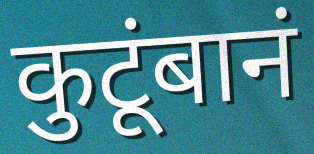
कुटूंबानं